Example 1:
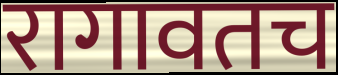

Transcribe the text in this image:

रागावतच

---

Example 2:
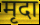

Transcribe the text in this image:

मृदा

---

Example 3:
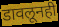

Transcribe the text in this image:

डावलूनही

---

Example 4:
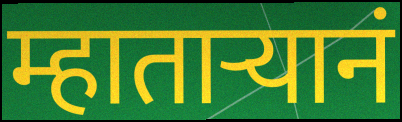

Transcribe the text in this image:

म्हाताऱ्यानं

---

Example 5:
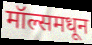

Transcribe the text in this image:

मॉल्समधून